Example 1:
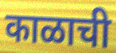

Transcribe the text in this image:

काळाची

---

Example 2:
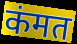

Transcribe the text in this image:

कंमत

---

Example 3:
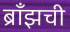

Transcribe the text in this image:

ब्राँझची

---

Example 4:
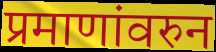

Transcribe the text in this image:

प्रमाणांवरुन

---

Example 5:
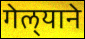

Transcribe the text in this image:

गेल्याने